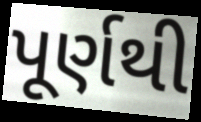
પૂર્ણથી